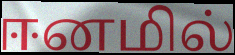
ஈனமில்